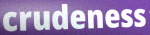
crudeness